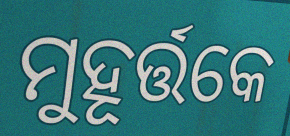
ମୁହୂର୍ତ୍ତକେ